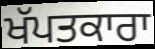
ਖੱਪਤਕਾਰਾ